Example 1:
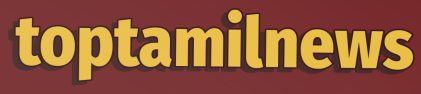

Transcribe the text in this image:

toptamilnews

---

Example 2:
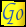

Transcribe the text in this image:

Go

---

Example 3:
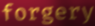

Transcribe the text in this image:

forgery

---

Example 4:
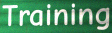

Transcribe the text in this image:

Training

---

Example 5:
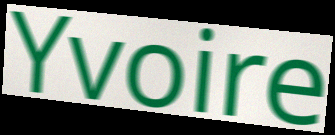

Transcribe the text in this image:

Yvoire